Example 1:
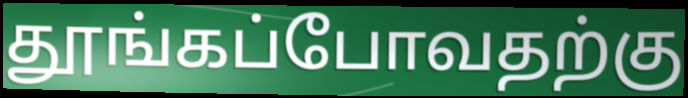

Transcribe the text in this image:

தூங்கப்போவதற்கு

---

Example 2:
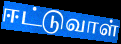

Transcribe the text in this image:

ஈட்டுவாள்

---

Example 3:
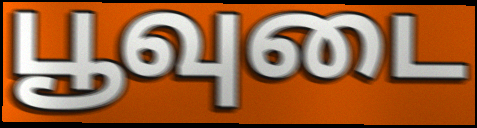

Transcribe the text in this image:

பூவுடை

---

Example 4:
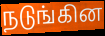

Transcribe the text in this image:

நடுங்கின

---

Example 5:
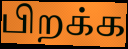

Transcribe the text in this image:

பிறக்க